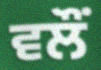
ਵਲੌੰ